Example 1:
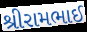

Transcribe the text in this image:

શ્રીરામભાઈ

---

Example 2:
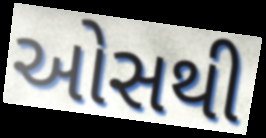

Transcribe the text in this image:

ઓસથી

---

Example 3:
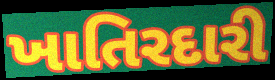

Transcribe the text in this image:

ખાતિરદારી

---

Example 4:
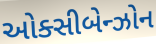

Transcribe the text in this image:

ઓક્સીબેન્ઝોન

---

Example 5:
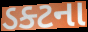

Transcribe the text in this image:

ડક્ટના